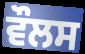
ਵੌਲਸ